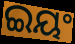
ଇୟଂ